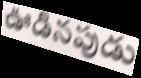
ఊడినపుడు